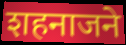
शहनाजने